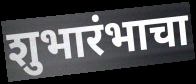
शुभारंभाचा